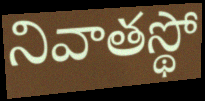
నివాతస్థో